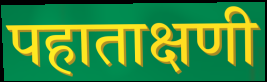
पहाताक्षणी